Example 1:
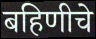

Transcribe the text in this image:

बहिणीचे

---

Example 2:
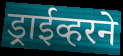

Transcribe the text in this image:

ड्राईव्हरने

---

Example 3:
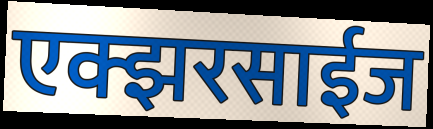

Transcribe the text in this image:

एक्झरसाईज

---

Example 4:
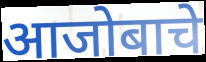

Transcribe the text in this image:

आजोबाचे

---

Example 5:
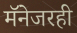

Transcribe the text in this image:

मॅनेजरही